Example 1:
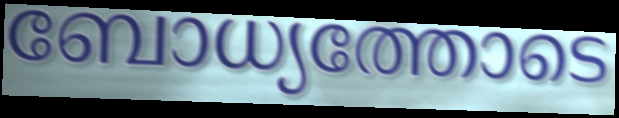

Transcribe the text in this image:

ബോധ്യത്തോടെ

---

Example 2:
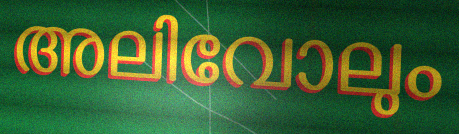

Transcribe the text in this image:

അലിവോലും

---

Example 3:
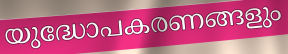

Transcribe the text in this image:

യുദ്ധോപകരണങ്ങളും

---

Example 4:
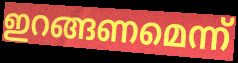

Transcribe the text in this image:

ഇറങ്ങണമെന്ന്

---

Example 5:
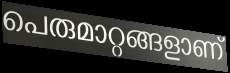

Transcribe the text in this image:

പെരുമാറ്റങ്ങളാണ്